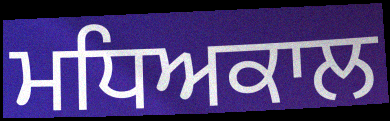
ਮਧਿਅਕਾਲ